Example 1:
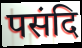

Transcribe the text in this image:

पसंदि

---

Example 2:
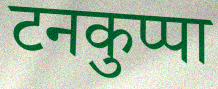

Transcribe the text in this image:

टनकुप्पा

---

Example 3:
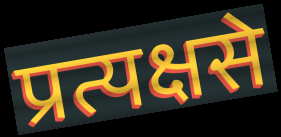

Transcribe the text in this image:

प्रत्यक्षसे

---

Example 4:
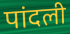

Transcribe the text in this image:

पांदली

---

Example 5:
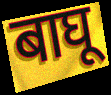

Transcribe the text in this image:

बाघू